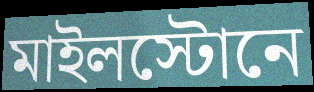
মাইলস্টোনে